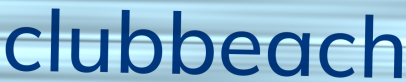
clubbeach